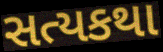
સત્યકથા